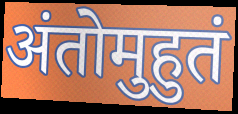
अंतोमुहुतं